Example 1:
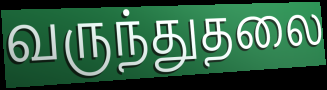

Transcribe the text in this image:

வருந்துதலை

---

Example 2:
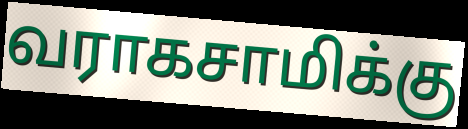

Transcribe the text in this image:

வராகசாமிக்கு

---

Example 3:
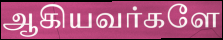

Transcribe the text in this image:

ஆகியவர்களே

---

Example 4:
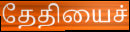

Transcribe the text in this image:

தேதியைச்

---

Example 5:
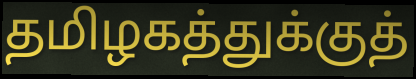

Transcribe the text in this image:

தமிழகத்துக்குத்